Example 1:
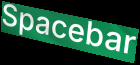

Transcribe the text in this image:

Spacebar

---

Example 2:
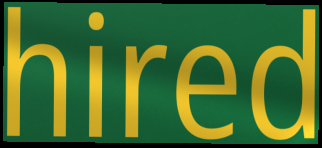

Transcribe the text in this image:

hired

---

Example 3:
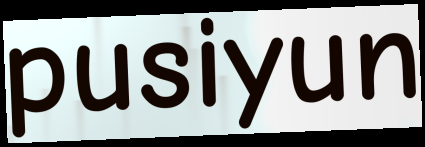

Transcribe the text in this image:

pusiyun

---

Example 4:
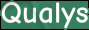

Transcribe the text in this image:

Qualys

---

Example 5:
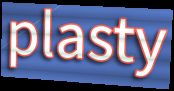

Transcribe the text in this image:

plasty